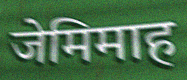
जेमिमाह